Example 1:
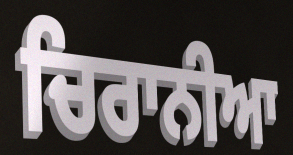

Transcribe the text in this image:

ਚਿਰਾਨੀਆ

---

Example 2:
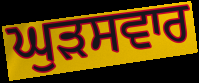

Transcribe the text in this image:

ਘੁੜਸਵਾਰ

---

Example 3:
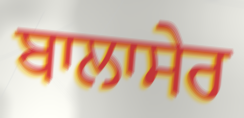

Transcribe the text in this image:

ਬਾਲਾਸੇਰ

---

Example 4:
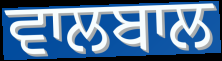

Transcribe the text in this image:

ਵਾਲਬਾਲ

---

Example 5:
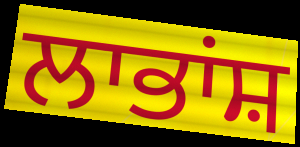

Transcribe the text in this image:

ਲਾਭਾਂਸ਼